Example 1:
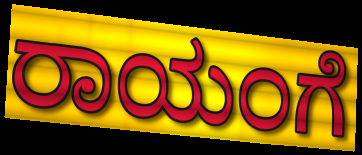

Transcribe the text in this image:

ರಾಯಂಗೆ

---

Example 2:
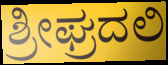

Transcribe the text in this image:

ಶ್ರೀಘ್ರದಲಿ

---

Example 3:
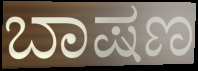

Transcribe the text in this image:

ಬಾಷಣ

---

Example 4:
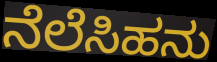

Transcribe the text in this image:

ನೆಲೆಸಿಹನು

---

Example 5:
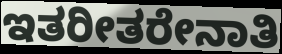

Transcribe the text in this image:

ಇತರೀತರೇನಾತಿ